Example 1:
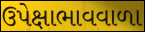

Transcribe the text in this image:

ઉપેક્ષાભાવવાળા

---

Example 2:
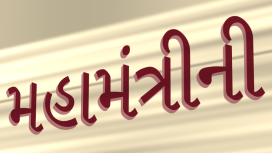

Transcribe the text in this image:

મહામંત્રીની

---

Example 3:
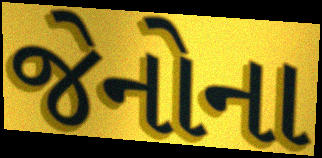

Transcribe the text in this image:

જેનોના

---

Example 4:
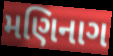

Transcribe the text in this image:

મણિનાગ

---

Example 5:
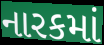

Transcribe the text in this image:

નારકમાં